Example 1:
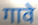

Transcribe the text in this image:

गावे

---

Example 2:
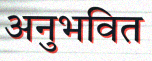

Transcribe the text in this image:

अनुभवित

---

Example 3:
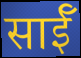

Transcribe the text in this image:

साईॅ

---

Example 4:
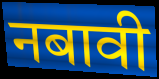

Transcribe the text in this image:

नबावी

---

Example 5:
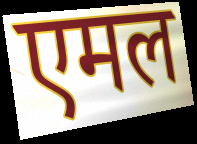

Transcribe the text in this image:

एमल